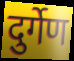
दुर्गेण